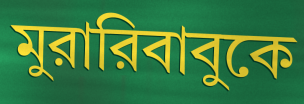
মুরারিবাবুকে